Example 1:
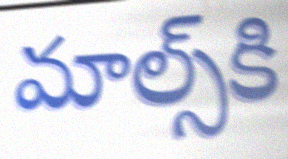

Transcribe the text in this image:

మాల్స్‌కి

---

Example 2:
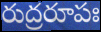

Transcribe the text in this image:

రుద్రరూపః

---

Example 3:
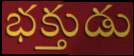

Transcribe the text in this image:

భక్తుడు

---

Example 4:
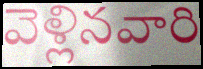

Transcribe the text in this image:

వెళ్లినవారి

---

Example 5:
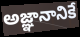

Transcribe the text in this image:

అజ్ఞానానికే